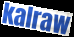
kalraw